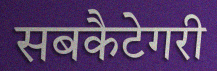
सबकैटेगरी